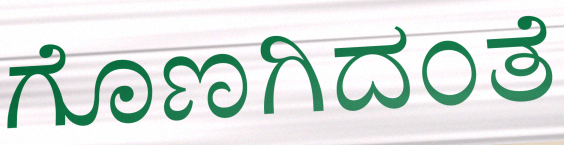
ಗೊಣಗಿದಂತೆ